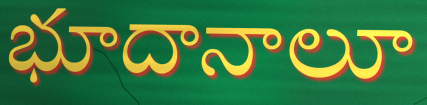
భూదానాలూ